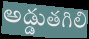
అడ్డుతగిలి